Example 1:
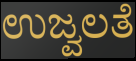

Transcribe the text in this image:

ಉಜ್ವಲತೆ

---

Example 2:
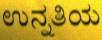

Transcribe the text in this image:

ಉನ್ನತಿಯ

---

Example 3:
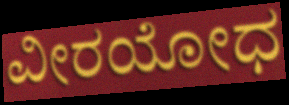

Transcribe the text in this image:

ವೀರಯೋಧ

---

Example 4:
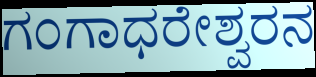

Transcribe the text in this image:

ಗಂಗಾಧರೇಶ್ವರನ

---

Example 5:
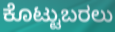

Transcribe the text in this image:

ಕೊಟ್ಟುಬರಲು